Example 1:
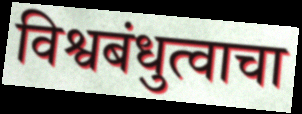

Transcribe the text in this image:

विश्वबंधुत्वाचा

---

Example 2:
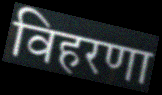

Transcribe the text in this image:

विहरणा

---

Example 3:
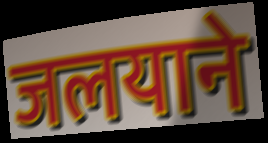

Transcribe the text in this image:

जलयाने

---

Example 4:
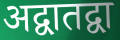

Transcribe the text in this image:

अद्वातद्वा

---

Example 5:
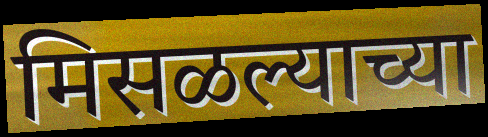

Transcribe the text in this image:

मिसळल्याच्या